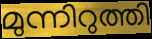
മുന്നിറുത്തി